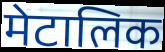
मेटालिक